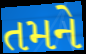
તમને